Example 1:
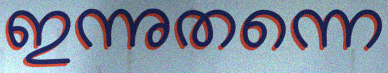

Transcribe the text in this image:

ഇന്നുതന്നെ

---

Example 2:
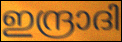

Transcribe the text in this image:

ഇന്ദ്രാദി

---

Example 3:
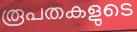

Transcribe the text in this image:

രൂപതകളുടെ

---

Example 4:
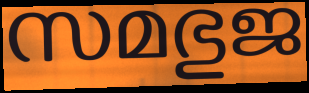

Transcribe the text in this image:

സമഭുജ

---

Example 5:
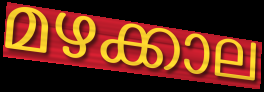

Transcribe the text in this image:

മഴക്കാല